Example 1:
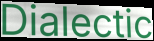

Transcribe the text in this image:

Dialectic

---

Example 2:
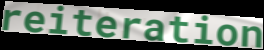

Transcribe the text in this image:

reiteration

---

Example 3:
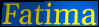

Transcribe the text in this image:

Fatima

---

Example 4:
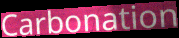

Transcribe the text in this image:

Carbonation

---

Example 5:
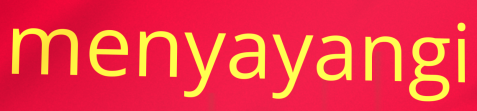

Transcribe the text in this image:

menyayangi